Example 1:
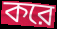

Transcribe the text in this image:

করে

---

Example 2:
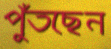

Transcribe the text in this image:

পুঁতছেন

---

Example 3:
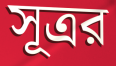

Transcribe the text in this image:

সূত্রর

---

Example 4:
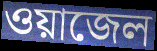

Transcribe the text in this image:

ওয়াজেল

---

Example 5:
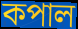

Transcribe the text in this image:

কপাল